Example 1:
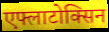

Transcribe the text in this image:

एफ्लाटोक्सिन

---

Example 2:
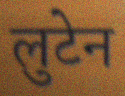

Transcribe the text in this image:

लुटेन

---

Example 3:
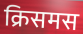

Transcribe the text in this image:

क्रिसमस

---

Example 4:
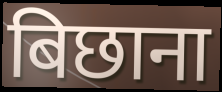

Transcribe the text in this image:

बिछाना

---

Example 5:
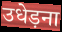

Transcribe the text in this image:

उधेड़ना